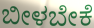
ಬೀಳಬೇಕೆ